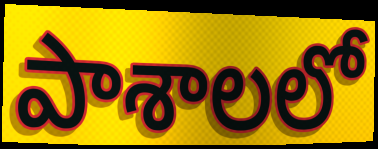
పాశాలలో